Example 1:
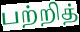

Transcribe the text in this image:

பற்றித்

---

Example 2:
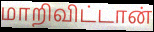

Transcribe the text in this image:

மாறிவிட்டான்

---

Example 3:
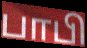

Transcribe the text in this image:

பாபி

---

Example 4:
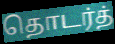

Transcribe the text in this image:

தொடர்த்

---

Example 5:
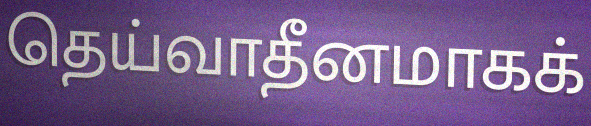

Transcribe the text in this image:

தெய்வாதீனமாகக்